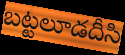
బట్టలూడదీసి